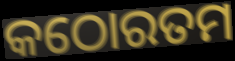
କଠୋରତମ